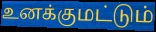
உனக்குமட்டும்